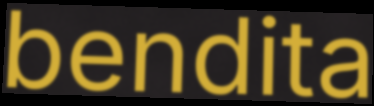
bendita